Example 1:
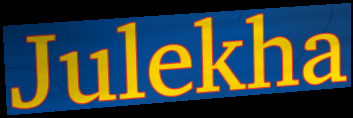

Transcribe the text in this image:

Julekha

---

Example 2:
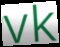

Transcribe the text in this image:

vk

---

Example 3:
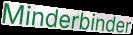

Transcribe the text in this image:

Minderbinder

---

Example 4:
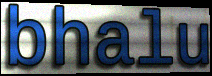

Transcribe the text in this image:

bhalu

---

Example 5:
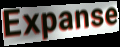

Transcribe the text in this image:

Expanse